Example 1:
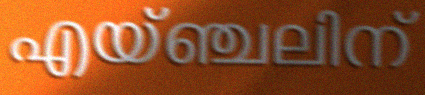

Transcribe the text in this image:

എയ്ഞ്ചലിന്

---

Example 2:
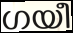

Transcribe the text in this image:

ഗയീ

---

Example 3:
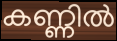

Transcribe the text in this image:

കണ്ണിൽ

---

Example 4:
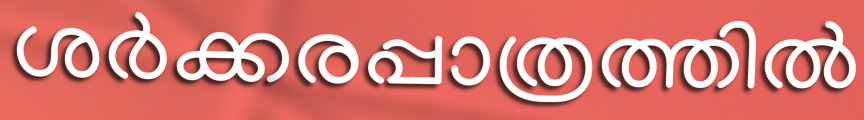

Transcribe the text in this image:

ശർക്കരപ്പാത്രത്തിൽ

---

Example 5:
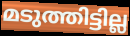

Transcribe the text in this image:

മടുത്തിട്ടില്ല